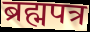
ब्रह्मपत्र